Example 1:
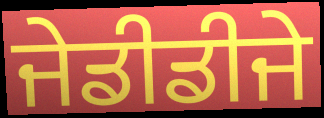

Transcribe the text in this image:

ਜੇਡੀਡੀਜੇ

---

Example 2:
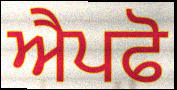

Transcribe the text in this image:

ਐਪਫੋ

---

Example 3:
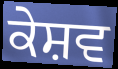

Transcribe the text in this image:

ਕੇਸ਼ਵ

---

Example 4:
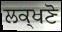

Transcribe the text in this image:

ਲਕ੍ਖਣੋ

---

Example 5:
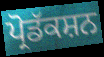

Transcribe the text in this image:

ਪ੍ਰੋਡੱਕਸ਼ਨ